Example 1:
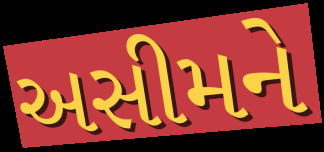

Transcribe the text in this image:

અસીમને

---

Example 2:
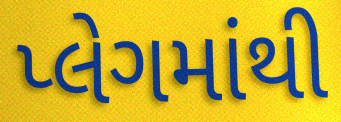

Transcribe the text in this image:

પ્લેગમાંથી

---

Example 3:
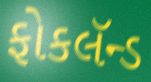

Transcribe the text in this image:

ફોકલૅન્ડ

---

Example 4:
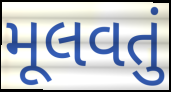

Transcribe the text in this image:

મૂલવતું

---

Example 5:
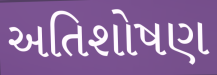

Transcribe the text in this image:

અતિશોષણ